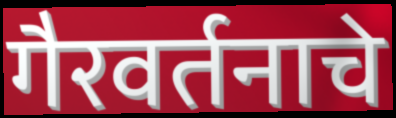
गैरवर्तनाचे